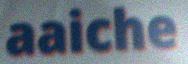
aaiche